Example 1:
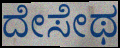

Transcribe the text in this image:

ದೇಸೇಥ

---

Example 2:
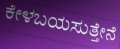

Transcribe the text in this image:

ಕೇಳಬಯಸುತ್ತೇನೆ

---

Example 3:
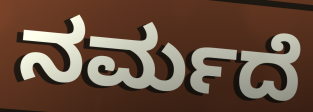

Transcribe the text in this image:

ನರ್ಮದೆ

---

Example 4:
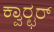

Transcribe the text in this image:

ಕ್ವಾರ‍್ಟರ್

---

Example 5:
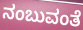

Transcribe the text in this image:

ನಂಬುವಂತೆ